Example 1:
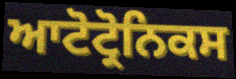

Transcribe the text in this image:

ਆਟੋਟ੍ਰੋਨਿਕਸ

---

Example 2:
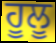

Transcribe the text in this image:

ਹੂਲੂ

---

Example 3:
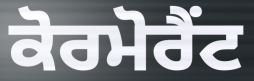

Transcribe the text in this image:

ਕੋਰਮੋਰੈਂਟ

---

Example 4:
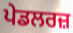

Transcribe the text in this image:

ਪੇਡਲਰਜ਼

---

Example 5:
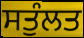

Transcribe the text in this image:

ਸਤੁੰਲਤ